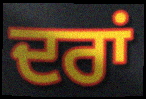
ਦਰਾਂ